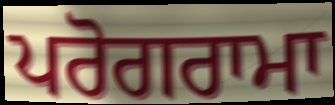
ਪਰੋਗਰਾਮਾ